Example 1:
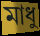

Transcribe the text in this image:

মাধু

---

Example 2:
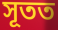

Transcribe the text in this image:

সূতত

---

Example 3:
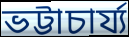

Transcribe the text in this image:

ভট্টাচাৰ্য্য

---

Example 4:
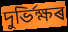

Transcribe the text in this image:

দুৰ্ভিক্ষৰ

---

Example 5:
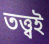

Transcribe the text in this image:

তত্ত্বই